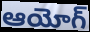
ఆయోగ్